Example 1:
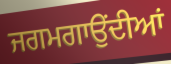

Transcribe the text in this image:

ਜਗਮਗਾਉਂਦੀਆਂ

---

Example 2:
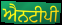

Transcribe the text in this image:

ਐਨਟੀਪੀ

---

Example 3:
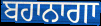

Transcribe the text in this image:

ਬਹਾਨਾਗਾ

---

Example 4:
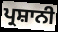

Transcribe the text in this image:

ਪ੍ਰਸ਼ਾਨੀ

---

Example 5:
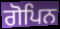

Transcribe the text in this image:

ਗੋਪਿਨ